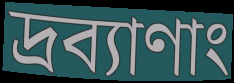
দ্রব্যাণাং